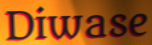
Diwase